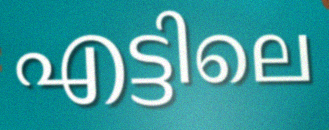
എട്ടിലെ